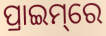
ପ୍ରାଇମ୍‌ରେ